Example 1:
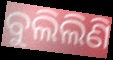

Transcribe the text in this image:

ବୁଲିଲିଣି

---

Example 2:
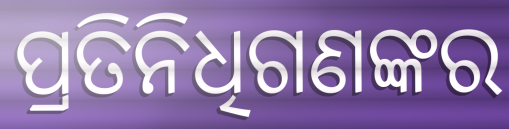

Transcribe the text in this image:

ପ୍ରତିନିଧିଗଣଙ୍କର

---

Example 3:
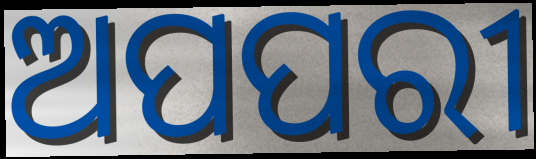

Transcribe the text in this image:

ଅପପରୀ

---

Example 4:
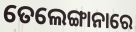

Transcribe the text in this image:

ତେଲେଙ୍ଗାନାରେ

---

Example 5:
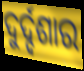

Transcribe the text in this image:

ଦୁର୍ଦ୍ଦଶାର